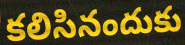
కలిసినందుకు